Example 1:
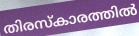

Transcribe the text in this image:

തിരസ്കാരത്തിൽ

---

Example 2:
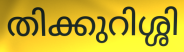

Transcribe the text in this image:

തിക്കുറിശ്ശി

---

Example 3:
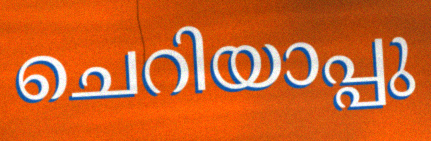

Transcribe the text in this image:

ചെറിയാപ്പു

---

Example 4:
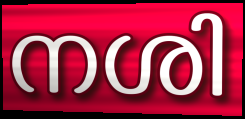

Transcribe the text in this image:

നശി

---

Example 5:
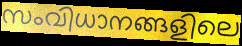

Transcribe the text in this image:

സംവിധാനങ്ങളിലെ